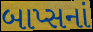
બાપ્સનાં